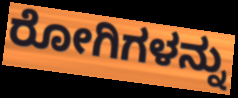
ರೋಗಿಗಳನ್ನು